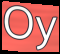
Oy